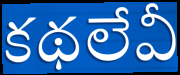
కథలేవీ